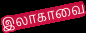
இலாகாவை